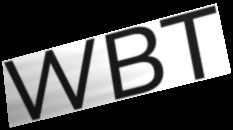
WBT